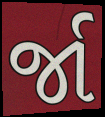
ર્જા